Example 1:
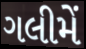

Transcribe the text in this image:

ગલીમેં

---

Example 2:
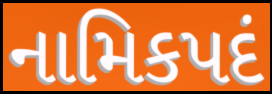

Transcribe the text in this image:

નામિકપદં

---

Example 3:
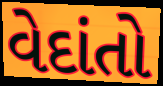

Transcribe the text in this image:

વેદાંતો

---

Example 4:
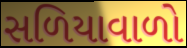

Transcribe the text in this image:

સળિયાવાળો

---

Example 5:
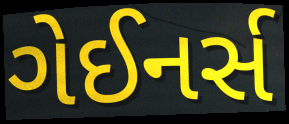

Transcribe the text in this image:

ગેઈનર્સ